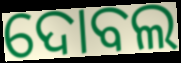
ଦୋବଲ